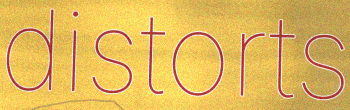
distorts